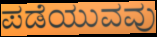
ಪಡೆಯುವವು